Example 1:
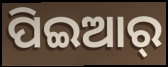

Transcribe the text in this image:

ପିଇଆର୍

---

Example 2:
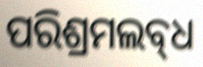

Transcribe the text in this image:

ପରିଶ୍ରମଲବ୍‍ଧ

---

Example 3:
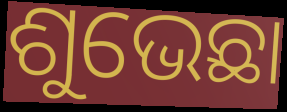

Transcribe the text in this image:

ଶୁଭେଛା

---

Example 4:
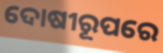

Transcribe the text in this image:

ଦୋଷୀରୂପରେ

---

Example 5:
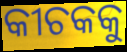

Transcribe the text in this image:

କୀଚକକୁ